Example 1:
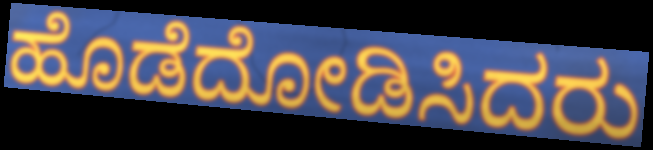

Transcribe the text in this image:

ಹೊಡೆದೋಡಿಸಿದರು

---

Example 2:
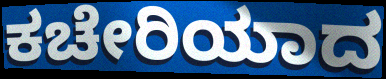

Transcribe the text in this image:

ಕಚೇರಿಯಾದ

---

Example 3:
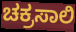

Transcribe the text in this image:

ಚಕ್ರಸಾಲಿ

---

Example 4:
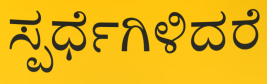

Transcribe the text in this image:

ಸ್ಪರ್ಧೆಗಿಳಿದರೆ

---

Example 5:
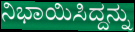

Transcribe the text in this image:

ನಿಭಾಯಿಸಿದ್ದನ್ನು